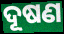
ଦୂଷଣ